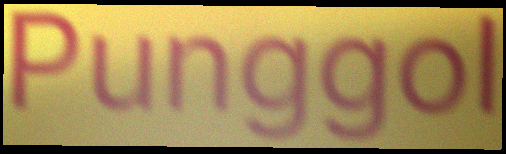
Punggol